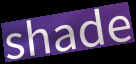
shade